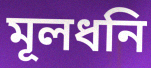
মূলধনি